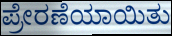
ಪ್ರೇರಣೆಯಾಯಿತು